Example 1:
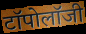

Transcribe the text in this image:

टॉपोलॉजी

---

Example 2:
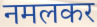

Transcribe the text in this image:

नमलकर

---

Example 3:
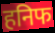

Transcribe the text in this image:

हनिफ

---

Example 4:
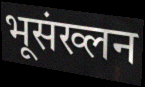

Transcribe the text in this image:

भूसंख्लन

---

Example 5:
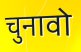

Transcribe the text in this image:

चुनावो